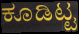
ಕೂಡಿಟ್ಟ